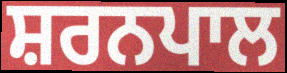
ਸ਼ਰਨਪਾਲ